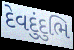
દેવદુંદુભિ